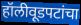
हॉलीवूडपटांचा